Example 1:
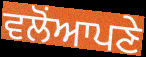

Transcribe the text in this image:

ਵਲੋਂਆਪਣੇ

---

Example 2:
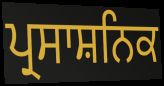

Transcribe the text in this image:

ਪ੍ਰਸਾਸ਼ਨਿਕ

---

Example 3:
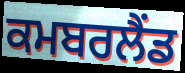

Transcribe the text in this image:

ਕਮਬਰਲੈਂਡ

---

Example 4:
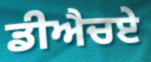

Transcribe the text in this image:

ਡੀਐਚਏ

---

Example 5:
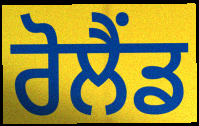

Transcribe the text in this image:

ਰੋਲੈਂਡ